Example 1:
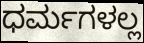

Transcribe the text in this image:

ಧರ್ಮಗಳಲ್ಲ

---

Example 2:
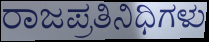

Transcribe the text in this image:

ರಾಜಪ್ರತಿನಿಧಿಗಳು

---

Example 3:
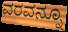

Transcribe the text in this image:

ವರವನ್ನೂ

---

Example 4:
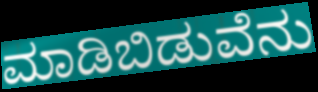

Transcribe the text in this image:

ಮಾಡಿಬಿಡುವೆನು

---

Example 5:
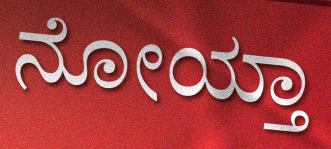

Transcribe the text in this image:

ನೋಯ್ತಾ